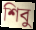
শিবু